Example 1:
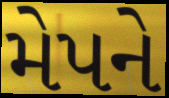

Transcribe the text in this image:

મેપને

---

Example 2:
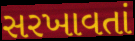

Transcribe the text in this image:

સરખાવતાં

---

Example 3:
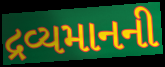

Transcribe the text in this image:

દ્રવ્યમાનની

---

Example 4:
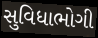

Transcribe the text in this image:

સુવિધાભોગી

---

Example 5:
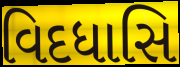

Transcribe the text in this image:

વિદધાસિ